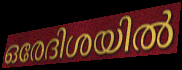
ഒരേദിശയിൽ